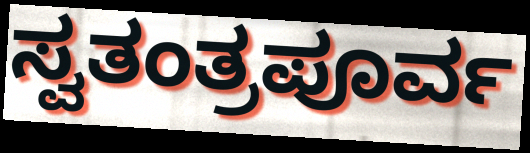
ಸ್ವತಂತ್ರಪೂರ್ವ